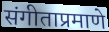
संगीताप्रमाणे